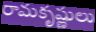
రామకృష్ణులు